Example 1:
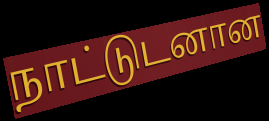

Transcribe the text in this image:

நாட்டுடனான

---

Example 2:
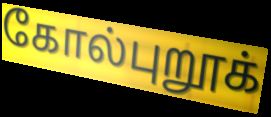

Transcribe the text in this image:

கோல்புறூக்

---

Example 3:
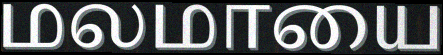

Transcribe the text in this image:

மலமாயை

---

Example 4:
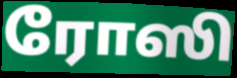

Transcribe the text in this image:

ரோஸி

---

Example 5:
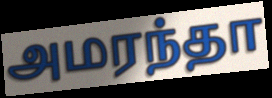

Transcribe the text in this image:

அமரந்தா